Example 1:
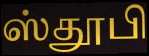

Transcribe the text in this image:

ஸ்தூபி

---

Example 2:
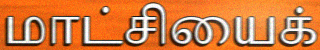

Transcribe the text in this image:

மாட்சியைக்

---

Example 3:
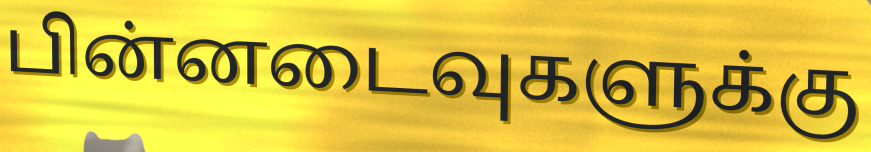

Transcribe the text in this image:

பின்னடைவுகளுக்கு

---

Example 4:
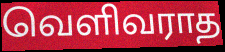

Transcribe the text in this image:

வெளிவராத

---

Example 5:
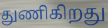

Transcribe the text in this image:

துணிகிறது